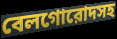
বেলগোরোদসহ